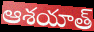
ఆశయాత్